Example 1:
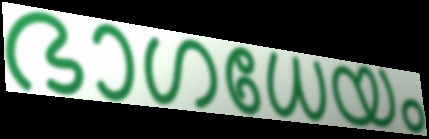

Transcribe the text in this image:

ഭാഗധേയം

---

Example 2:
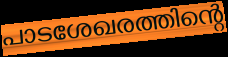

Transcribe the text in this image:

പാടശേഖരത്തിന്റെ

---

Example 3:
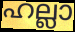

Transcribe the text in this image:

ഹല്ലാ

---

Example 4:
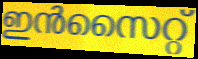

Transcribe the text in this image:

ഇൻസൈറ്റ്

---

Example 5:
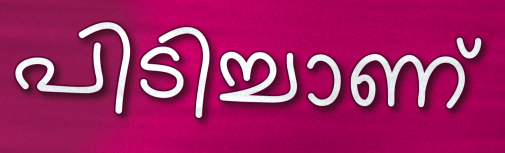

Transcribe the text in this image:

പിടിച്ചാണ്